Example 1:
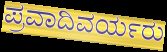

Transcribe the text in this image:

ಪ್ರವಾದಿವರ್ಯರು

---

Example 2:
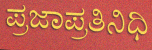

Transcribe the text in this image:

ಪ್ರಜಾಪ್ರತಿನಿಧಿ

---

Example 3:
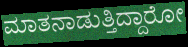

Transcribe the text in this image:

ಮಾತನಾಡುತ್ತಿದ್ದಾರೋ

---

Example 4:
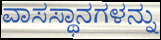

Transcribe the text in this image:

ವಾಸಸ್ಥಾನಗಳನ್ನು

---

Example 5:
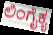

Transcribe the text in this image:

ಲಿಂಗೈಕ್ಯ